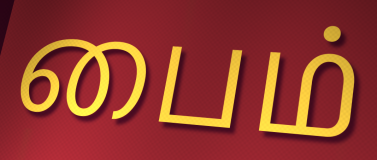
பைம்